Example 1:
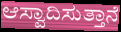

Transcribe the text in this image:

ಆಸ್ವಾದಿಸುತ್ತಾನೆ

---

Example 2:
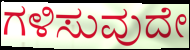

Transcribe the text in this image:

ಗಳಿಸುವುದೇ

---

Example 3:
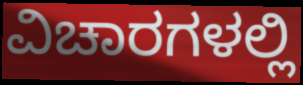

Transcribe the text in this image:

ವಿಚಾರಗಳಲ್ಲಿ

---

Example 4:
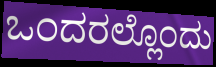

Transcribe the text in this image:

ಒಂದರಲ್ಲೊಂದು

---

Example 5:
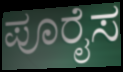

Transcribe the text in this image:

ಪೂರೈಸ